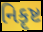
નિકૃષ્ટ